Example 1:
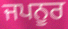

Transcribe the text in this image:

ਜਪਨੂਰ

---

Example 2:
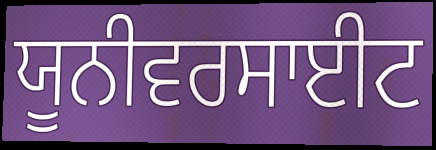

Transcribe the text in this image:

ਯੂਨੀਵਰਸਾਈਟ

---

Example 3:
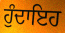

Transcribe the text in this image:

ਹੁੰਦਾਇਹ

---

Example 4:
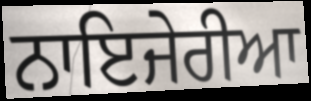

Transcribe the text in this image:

ਨਾਇਜੇਰੀਆ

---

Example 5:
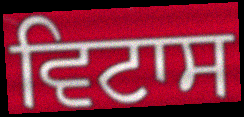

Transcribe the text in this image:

ਵਿਟਾਸ